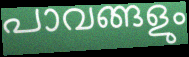
പാവങ്ങളും